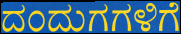
ದಂದುಗಗಳಿಗೆ